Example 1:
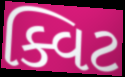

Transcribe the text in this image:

ક્વિટ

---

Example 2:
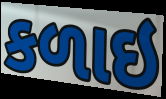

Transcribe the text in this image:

કળાઇ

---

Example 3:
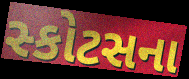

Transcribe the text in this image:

સ્કોટસના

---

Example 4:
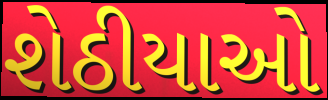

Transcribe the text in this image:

શેઠીયાઓ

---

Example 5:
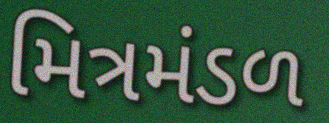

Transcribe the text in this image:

મિત્રમંડળ